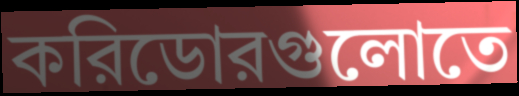
করিডোরগুলোতে